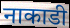
नाकाडी